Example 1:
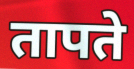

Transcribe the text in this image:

तापते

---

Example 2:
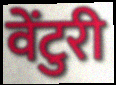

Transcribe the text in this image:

वेंटुरी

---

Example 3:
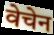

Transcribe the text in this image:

वेचेन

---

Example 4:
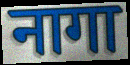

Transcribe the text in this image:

नागा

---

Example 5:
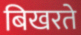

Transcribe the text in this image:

बिखरते